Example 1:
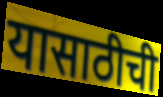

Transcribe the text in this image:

यासाठीची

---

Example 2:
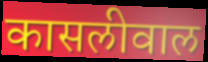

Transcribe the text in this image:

कासलीवाल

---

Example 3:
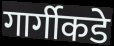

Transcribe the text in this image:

गार्गीकडे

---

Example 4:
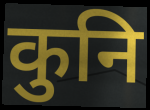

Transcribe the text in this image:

कुनि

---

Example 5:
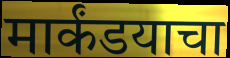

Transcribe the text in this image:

मार्कंडयाचा